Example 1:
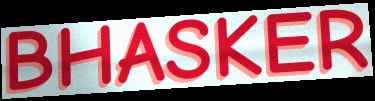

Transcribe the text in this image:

BHASKER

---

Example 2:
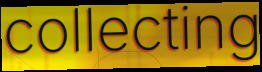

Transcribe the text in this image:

collecting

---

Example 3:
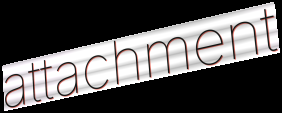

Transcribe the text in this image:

attachment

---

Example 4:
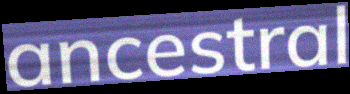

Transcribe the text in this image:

ancestral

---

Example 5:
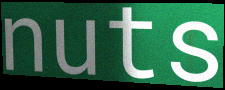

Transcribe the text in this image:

nuts